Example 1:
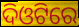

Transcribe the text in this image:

ଦିଓଟିରେ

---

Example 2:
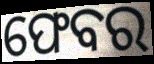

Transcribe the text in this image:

ଫେବର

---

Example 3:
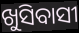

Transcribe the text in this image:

ଖୁସିବାସୀ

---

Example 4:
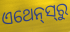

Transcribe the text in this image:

ଏଥେନ୍‌ସ୍‌ରୁ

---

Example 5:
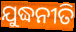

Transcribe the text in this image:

ଯୁଦ୍ଧନୀତି